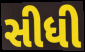
સીધી